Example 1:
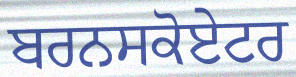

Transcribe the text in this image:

ਬਰਨਸਕੋਏਟਰ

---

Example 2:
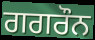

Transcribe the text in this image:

ਗਗਰੌਨ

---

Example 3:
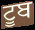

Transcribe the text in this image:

ਟੂਬ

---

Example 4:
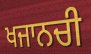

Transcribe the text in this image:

ਖਜਾਨਚੀ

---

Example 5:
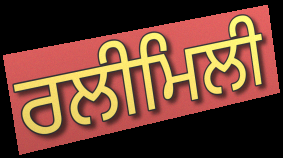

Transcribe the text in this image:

ਰਲੀਮਿਲੀ